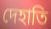
দেহাতি